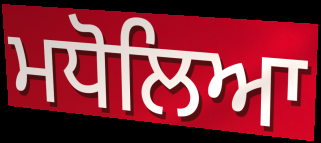
ਮਧੋਲਿਆ